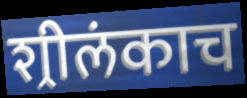
श्रीलंकाच